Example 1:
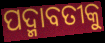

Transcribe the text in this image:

ପଦ୍ମାବତୀକୁ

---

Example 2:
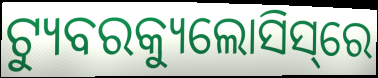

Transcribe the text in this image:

ଟ୍ୟୁବରକ୍ୟୁଲୋସିସ୍‌ରେ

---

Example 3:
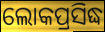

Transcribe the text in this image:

ଲୋକପ୍ରସିଦ୍ଧ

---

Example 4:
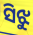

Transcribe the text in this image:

ସିଝୁ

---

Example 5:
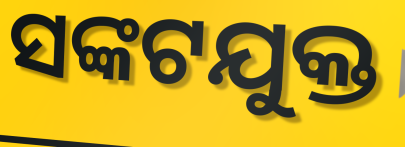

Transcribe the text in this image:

ସଙ୍କଟଯୁକ୍ତ